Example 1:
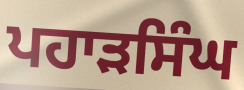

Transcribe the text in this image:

ਪਹਾੜਸਿੰਘ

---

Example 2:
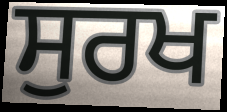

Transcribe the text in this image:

ਸੁਰਖ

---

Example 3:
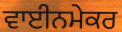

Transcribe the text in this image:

ਵਾਈਨਮੇਕਰ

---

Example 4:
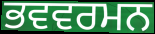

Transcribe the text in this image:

ਭਵਵਰਮਨ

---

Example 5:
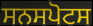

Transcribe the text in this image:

ਸਨਸਪੋਟਸ